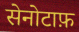
सेनोटाफ़